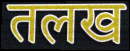
तलख